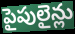
పైపులైన్లు